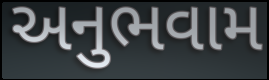
અનુભવામ